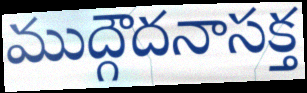
ముద్గౌదనాసక్త